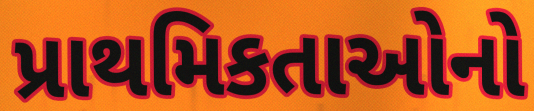
પ્રાથમિકતાઓનો